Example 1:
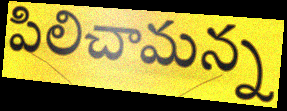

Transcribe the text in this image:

పిలిచామన్న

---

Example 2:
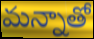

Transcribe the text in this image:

మన్నాతో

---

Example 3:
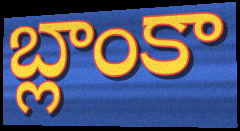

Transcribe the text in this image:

బ్లాంకా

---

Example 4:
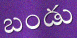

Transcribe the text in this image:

బండు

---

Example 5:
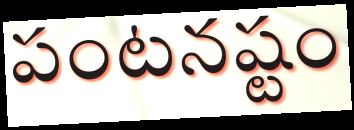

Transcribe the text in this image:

పంటనష్టం